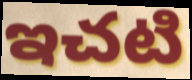
ఇచటి